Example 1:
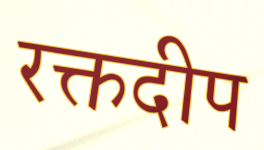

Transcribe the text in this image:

रक्तदीप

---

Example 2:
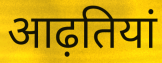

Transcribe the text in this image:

आढ़तियां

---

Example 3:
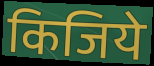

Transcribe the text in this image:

किजिये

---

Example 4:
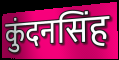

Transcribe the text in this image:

कुंदनसिंह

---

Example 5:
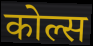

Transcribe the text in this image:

कोल्स